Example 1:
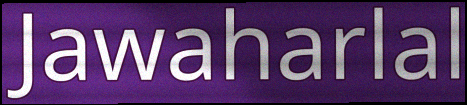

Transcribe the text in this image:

Jawaharlal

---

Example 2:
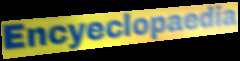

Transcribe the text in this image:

Encyeclopaedia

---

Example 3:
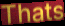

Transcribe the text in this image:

Thats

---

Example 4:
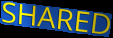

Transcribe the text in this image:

SHARED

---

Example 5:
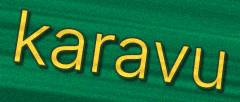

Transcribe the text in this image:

karavu